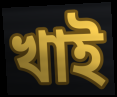
খাই